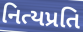
નિત્યપ્રતિ